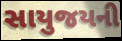
સાયુજયની